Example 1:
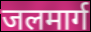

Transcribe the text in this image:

जलमार्ग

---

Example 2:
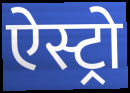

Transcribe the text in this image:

ऐस्ट्रो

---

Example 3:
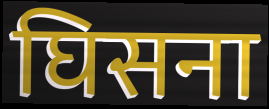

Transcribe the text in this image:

घिसना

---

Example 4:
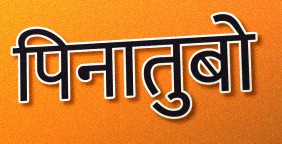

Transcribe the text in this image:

पिनातुबो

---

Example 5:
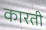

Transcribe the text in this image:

कारती